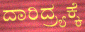
ದಾರಿದ್ರ್ಯಕ್ಕೆ